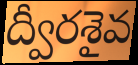
ద్వీరశైవ